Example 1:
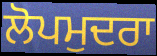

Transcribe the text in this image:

ਲੋਪਮੁਦਰਾ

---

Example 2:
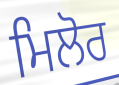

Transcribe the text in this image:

ਮਿਲੋਰ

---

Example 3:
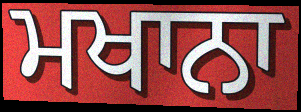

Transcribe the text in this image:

ਮਖਾਨਾ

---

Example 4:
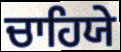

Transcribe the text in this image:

ਚਾਹਿਯੇ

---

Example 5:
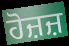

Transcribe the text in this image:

ਹੋਜ਼ਜ਼